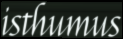
isthumus